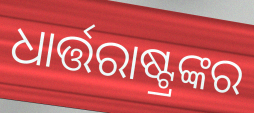
ଧାର୍ତ୍ତରାଷ୍ଟ୍ରଙ୍କର